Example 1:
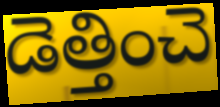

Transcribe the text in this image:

డెత్తించె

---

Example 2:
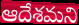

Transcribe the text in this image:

ఆదేశమని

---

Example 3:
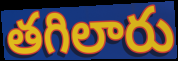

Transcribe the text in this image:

తగిలారు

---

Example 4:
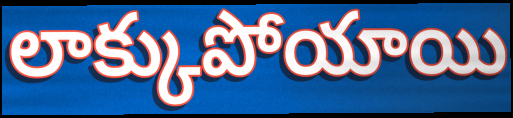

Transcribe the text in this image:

లాక్కుపోయాయి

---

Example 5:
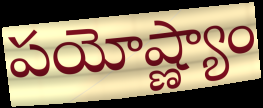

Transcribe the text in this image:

పయోష్ణ్యాం